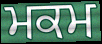
ਮਕਮ